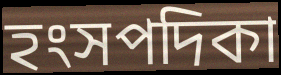
হংসপদিকা